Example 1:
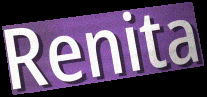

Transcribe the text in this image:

Renita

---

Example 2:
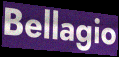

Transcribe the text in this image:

Bellagio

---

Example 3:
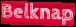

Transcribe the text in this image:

Belknap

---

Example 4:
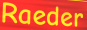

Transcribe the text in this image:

Raeder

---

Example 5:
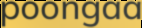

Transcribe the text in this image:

poongaa